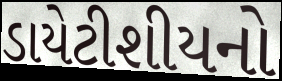
ડાયેટીશીયનો